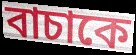
বাচাকে